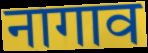
नागाव